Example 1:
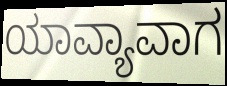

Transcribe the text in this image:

ಯಾವ್ಯಾವಾಗ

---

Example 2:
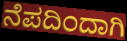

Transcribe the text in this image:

ನೆಪದಿಂದಾಗಿ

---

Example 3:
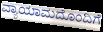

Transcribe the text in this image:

ವ್ಯಾಯಾಮದೊಂದಿಗೆ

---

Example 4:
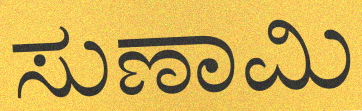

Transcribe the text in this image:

ಸುಣಾಮಿ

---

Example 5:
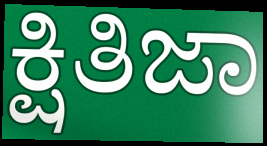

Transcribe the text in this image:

ಕ್ಷಿತಿಜಾ